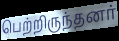
பெற்றிருந்தனர்